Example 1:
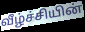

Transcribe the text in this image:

வீழ்ச்சியின்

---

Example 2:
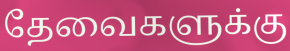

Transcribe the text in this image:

தேவைகளுக்கு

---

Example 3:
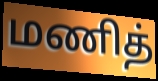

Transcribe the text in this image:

மணித்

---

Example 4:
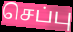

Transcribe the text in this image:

செப்பு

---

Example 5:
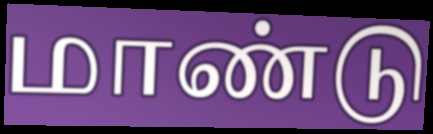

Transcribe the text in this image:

மாண்டு